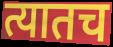
त्यातच